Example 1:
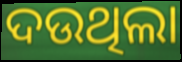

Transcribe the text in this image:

ଦଉଥିଲା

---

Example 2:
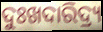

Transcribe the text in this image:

ଦୁଃଖଦାରିଦ୍ର୍ୟ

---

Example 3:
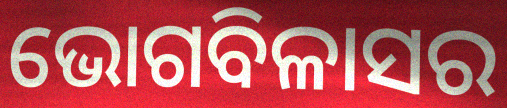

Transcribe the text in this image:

ଭୋଗବିଳାସର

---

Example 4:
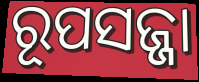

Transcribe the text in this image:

ରୂପସଜ୍ଜା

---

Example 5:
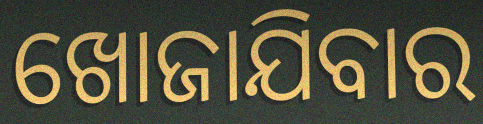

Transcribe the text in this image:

ଖୋଜାଯିବାର